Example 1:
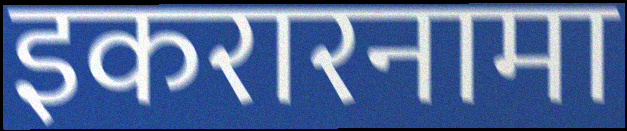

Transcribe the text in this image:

इकरारनामा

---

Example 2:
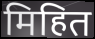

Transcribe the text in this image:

मिहित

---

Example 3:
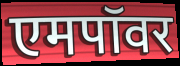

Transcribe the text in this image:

एमपॉवर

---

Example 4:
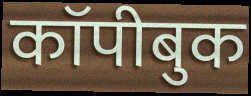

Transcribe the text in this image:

कॉपीबुक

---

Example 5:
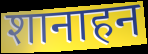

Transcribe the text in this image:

शानाहन